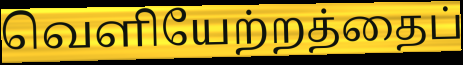
வெளியேற்றத்தைப்